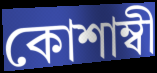
কোশাম্বী